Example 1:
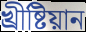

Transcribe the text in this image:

খ্ৰীষ্টিয়ান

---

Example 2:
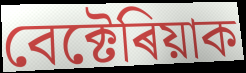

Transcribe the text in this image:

বেক্টেৰিয়াক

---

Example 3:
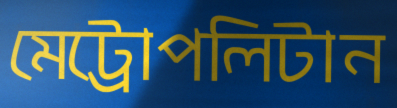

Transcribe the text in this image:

মেট্ৰোপলিটান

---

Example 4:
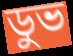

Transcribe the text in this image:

ডুভ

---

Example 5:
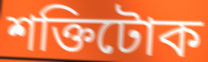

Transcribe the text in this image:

শক্তিটোক